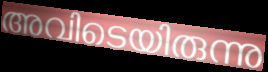
അവിടെയിരുന്നു